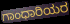
ಗಾಂಧಾರಿಯರ